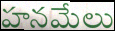
హనమేలు